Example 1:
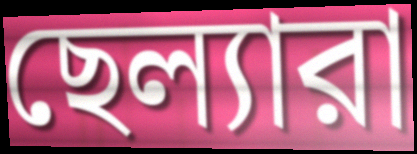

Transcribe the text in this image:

ছেল্যারা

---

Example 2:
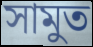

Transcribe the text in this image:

সামুত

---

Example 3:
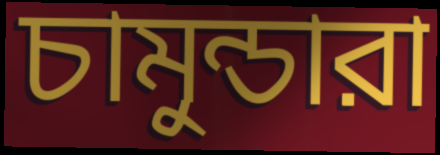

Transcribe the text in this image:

চামুন্ডারা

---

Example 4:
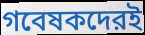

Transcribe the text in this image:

গবেষকদেরই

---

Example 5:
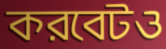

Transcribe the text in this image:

করবেটও